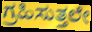
ಗ್ರಹಿಸುತ್ತಲೇ